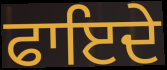
ਫਾਇਦੇ